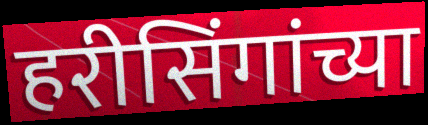
हरीसिंगांच्या